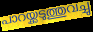
പാറയ്ക്കടുത്തുവച്ചു